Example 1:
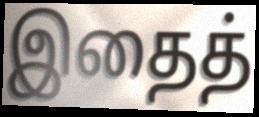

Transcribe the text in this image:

இதைத்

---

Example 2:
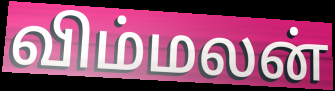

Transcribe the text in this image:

விம்மலன்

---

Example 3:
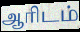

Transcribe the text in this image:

ஆரிடம்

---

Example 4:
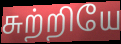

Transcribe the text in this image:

சுற்றியே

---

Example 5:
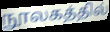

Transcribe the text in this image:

நூலகத்தில்